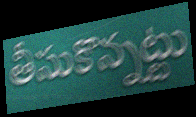
తీసుకొన్నట్టు